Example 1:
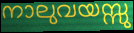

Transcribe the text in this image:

നാലുവയസ്സു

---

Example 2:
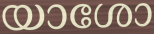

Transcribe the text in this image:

യാശോ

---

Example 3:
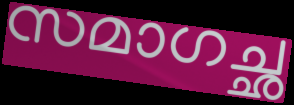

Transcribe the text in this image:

സമാഗച്ഛ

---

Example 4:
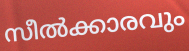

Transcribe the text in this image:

സീൽക്കാരവും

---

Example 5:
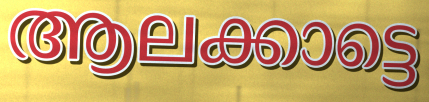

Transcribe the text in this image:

ആലക്കാട്ടെ